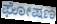
ಘೋಷಣ